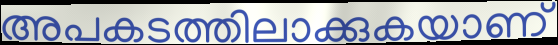
അപകടത്തിലാക്കുകയാണ്